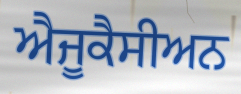
ਐਜੂਕੈਸੀਅਨ